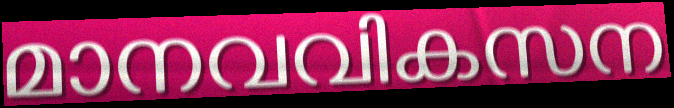
മാനവവികസന